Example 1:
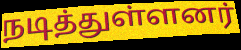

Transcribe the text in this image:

நடித்துள்ளனர்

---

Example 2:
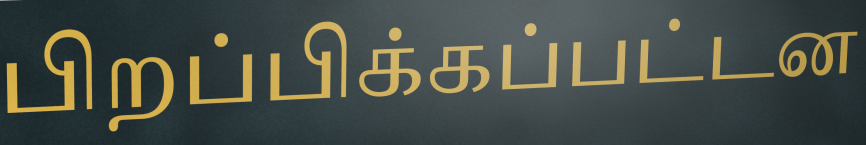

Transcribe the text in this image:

பிறப்பிக்கப்பட்டன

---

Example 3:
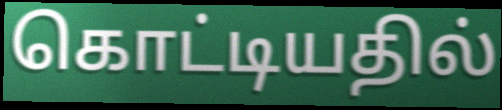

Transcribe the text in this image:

கொட்டியதில்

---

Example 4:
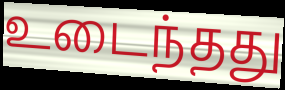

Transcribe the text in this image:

உடைந்தது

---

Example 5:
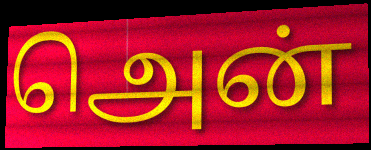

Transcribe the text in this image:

அென்